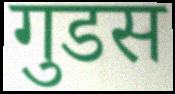
गुडस